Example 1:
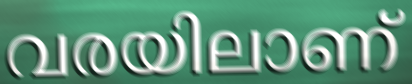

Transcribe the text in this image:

വരയിലാണ്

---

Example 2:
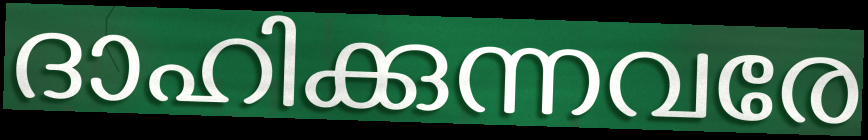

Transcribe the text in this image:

ദാഹിക്കുന്നവരേ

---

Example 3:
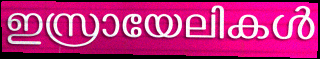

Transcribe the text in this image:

ഇസ്രായേലികൾ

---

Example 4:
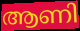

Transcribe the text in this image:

ആണി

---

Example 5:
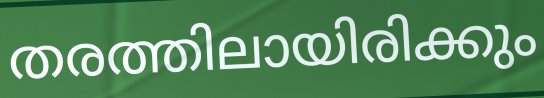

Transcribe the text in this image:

തരത്തിലായിരിക്കും